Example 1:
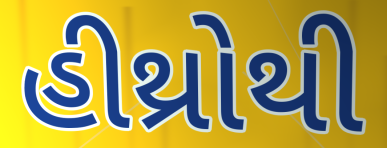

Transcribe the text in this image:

હીથ્રોથી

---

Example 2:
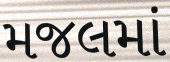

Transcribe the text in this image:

મજલમાં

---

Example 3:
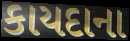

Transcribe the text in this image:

કાયદાના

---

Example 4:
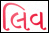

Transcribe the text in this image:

લિવ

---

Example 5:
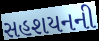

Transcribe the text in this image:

સહશયનની